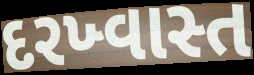
દરખ્વાસ્ત